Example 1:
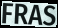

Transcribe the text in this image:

FRAS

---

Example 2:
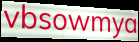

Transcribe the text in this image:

vbsowmya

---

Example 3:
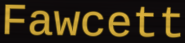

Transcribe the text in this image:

Fawcett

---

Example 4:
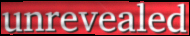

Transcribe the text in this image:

unrevealed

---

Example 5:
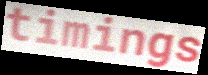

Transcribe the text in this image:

timings